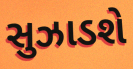
સુઝાડશે